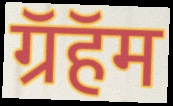
ग्रॅहॅम